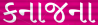
કનાજના